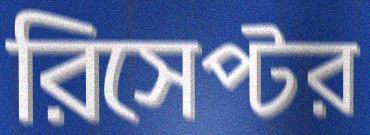
রিসেপ্টর